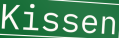
Kissen